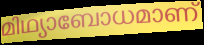
മിഥ്യാബോധമാണ്